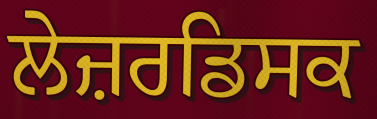
ਲੇਜ਼ਰਡਿਸਕ